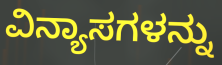
ವಿನ್ಯಾಸಗಳನ್ನು